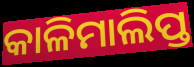
କାଳିମାଲିପ୍ତ